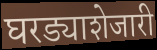
घरड्याशेजारी